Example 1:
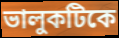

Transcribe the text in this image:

ভালুকটিকে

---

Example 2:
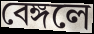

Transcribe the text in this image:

বেঙ্গলে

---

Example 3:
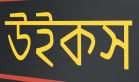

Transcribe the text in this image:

উইকস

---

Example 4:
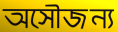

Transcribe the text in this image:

অসৌজন্য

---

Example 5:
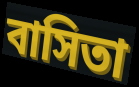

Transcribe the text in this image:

বাসিতা